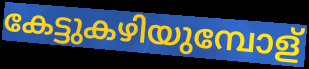
കേട്ടുകഴിയുമ്പോള്